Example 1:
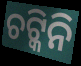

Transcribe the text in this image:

ଚଟ୍କିନି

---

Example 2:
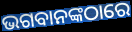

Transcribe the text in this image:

ଭଗବାନଙ୍କଠାରେ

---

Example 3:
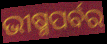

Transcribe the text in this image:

ଭୀଷ୍ମପର୍ବର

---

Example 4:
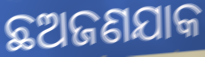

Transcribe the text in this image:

ଛଅଜଣଯାକ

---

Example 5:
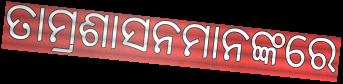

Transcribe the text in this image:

ତାମ୍ରଶାସନମାନଙ୍କରେ